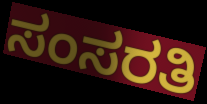
ಸಂಸರತಿ